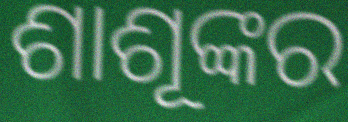
ଶାଶୂଙ୍କର